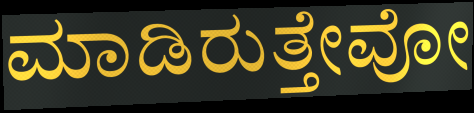
ಮಾಡಿರುತ್ತೇವೋ